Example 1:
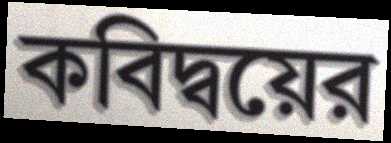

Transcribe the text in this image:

কবিদ্বয়ের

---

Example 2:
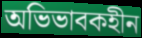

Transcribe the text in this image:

অভিভাবকহীন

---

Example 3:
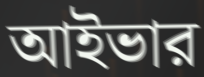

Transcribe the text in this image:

আইভার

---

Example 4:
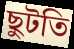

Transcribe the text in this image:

ছুটতি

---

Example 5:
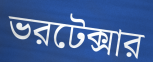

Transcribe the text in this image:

ভরটেক্সার